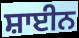
ਸ਼ਾਈਨ